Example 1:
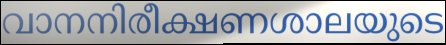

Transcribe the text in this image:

വാനനിരീക്ഷണശാലയുടെ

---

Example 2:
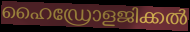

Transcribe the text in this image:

ഹൈഡ്രോളജിക്കൽ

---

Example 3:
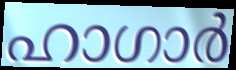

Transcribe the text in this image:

ഹാഗാർ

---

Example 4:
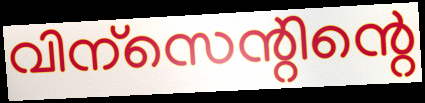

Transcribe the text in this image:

വിന്സെന്റിന്റെ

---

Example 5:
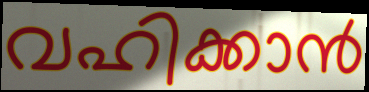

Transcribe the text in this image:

വഹിക്കാൻ